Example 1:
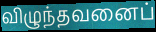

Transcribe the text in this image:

விழுந்தவனைப்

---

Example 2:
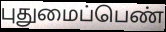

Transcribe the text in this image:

புதுமைப்பெண்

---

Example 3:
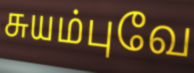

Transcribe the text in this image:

சுயம்புவே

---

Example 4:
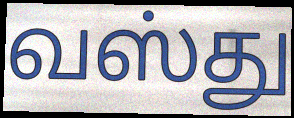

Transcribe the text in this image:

வஸ்து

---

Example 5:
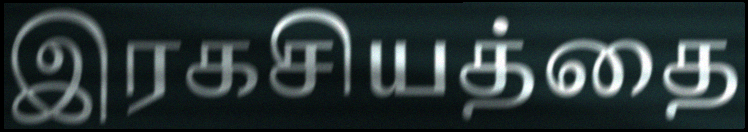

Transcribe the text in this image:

இரகசியத்தை